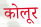
कोलूर